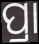
ପ୍ରା